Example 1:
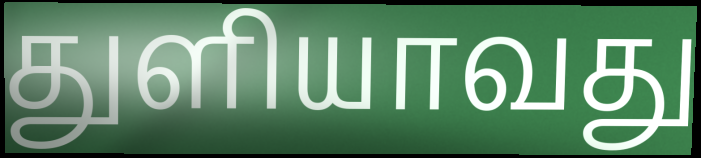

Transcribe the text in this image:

துளியாவது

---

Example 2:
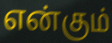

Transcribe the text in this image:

என்கும்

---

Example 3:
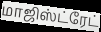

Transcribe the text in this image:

மாஜிஸ்ட்ரேட்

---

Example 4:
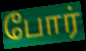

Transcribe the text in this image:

போர்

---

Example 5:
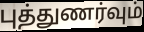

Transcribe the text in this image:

புத்துணர்வும்